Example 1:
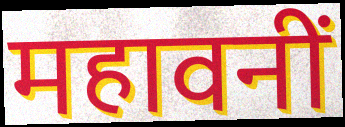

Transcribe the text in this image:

महावनीं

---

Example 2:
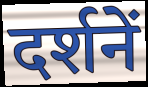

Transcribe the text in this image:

दर्शनें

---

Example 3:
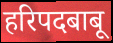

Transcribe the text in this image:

हरिपदबाबू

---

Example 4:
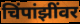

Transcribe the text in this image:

चिंपांझींवर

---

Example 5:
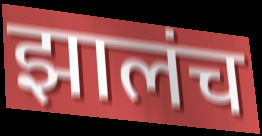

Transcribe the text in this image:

झालंच